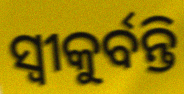
ସ୍ଵୀକୁର୍ବନ୍ତି